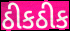
ઠીકઠીક